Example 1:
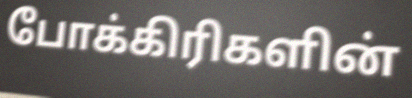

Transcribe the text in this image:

போக்கிரிகளின்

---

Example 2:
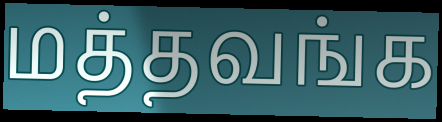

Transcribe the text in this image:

மத்தவங்க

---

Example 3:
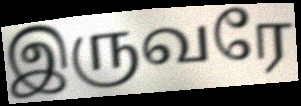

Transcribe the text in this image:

இருவரே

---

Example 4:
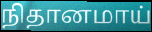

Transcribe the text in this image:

நிதானமாய்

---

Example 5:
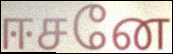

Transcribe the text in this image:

ஈசனே